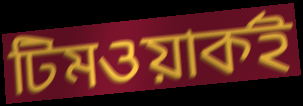
টিমওয়ার্কই